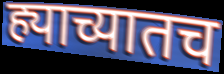
ह्याच्यातच